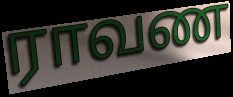
ராவண